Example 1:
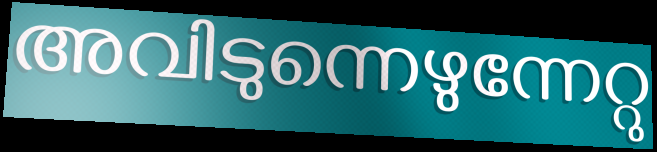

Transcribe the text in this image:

അവിടുന്നെഴുന്നേറ്റു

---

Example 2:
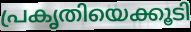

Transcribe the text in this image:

പ്രകൃതിയെക്കൂടി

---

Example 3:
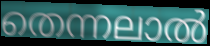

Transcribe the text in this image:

തെന്നലാൽ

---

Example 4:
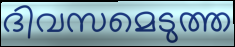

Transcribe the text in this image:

ദിവസമെടുത്ത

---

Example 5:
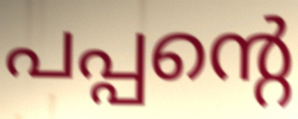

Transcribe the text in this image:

പപ്പന്റെ